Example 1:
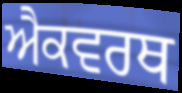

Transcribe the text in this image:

ਐਕਵਰਥ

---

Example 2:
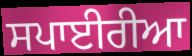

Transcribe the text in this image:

ਸਪਾਈਰੀਆ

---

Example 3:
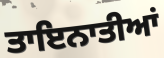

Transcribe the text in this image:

ਤਾਇਨਾਤੀਆਂ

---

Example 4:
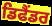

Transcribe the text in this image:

ਡਿਫੈਂਡਰ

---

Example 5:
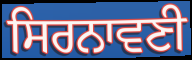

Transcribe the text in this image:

ਸਿਰਨਾਵਣੀ